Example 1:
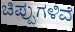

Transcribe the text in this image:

ಚಿಪ್ಪುಗಳಿವೆ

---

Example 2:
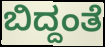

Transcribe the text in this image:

ಬಿದ್ದಂತೆ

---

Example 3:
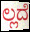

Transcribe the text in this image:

ಲ್ಲದೆ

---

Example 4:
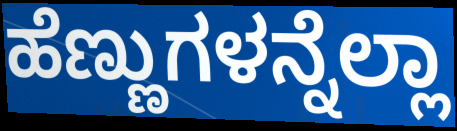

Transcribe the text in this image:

ಹೆಣ್ಣುಗಳನ್ನೆಲ್ಲಾ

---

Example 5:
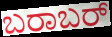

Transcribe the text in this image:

ಬರಾಬರ್